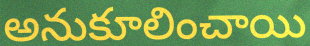
అనుకూలించాయి